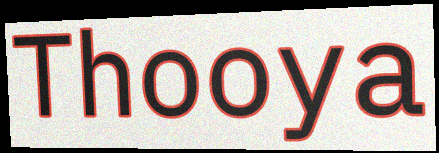
Thooya